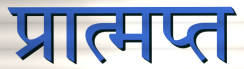
प्रात्मप्त